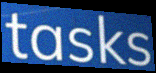
tasks